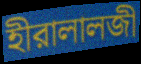
হীরালালজী